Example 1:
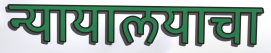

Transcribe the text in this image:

न्यायालयाचा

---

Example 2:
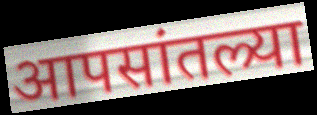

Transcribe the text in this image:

आपसांतल्या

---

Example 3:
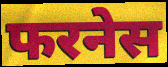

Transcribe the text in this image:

फरनेस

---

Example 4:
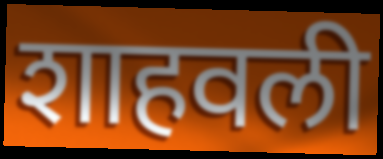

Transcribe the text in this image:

शाहवली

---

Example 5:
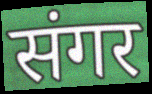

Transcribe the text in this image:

संगर